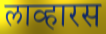
लाव्हारस